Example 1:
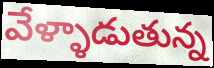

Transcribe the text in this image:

వేళ్ళాడుతున్న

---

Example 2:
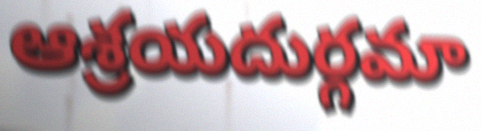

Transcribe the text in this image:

ఆశ్రయదుర్గమా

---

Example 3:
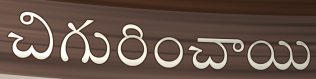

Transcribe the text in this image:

చిగురించాయి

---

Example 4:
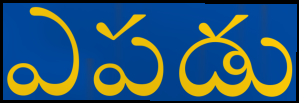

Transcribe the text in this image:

ఎపడు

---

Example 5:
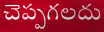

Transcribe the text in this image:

చెప్పగలదు